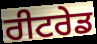
ਰੀਟਰੇਡ